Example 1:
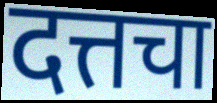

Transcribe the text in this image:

दत्तचा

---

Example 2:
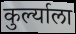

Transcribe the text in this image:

कुर्ल्याला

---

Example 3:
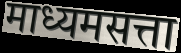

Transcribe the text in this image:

माध्यमसत्ता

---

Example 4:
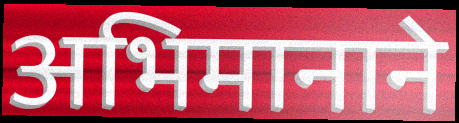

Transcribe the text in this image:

अभिमानाने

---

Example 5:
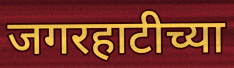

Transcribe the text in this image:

जगरहाटीच्या